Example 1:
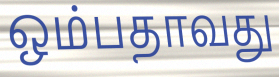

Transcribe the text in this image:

ஒம்பதாவது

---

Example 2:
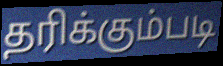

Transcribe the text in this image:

தரிக்கும்படி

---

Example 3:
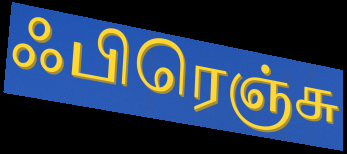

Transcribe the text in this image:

ஃபிரெஞ்சு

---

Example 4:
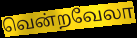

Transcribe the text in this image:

வென்றவேலா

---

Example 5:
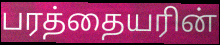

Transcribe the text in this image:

பரத்தையரின்